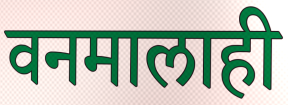
वनमालाही